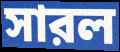
সারল